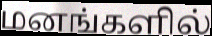
மனங்களில்